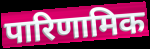
पारिणामिक